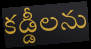
కడ్డీలను